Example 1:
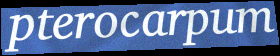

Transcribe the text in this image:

pterocarpum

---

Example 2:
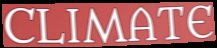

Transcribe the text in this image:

CLIMATE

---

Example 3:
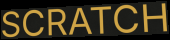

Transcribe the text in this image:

SCRATCH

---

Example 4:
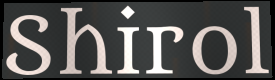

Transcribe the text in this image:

Shirol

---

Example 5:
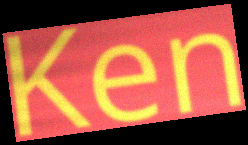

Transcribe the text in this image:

Ken